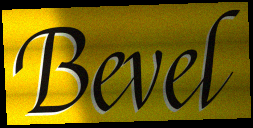
Bevel